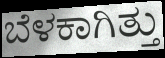
ಬೆಳಕಾಗಿತ್ತು